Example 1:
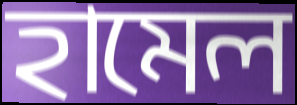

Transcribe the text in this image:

হামেল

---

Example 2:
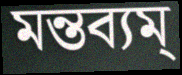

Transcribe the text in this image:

মন্তব্যম্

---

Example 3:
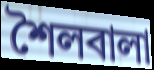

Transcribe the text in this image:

শৈলবালা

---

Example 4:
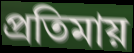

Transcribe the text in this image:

প্রতিমায়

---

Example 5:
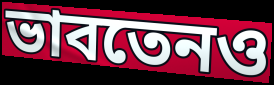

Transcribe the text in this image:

ভাবতেনও